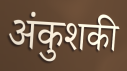
अंकुशकी